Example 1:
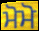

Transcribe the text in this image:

ਮੋਮੋ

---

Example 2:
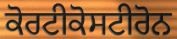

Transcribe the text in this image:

ਕੋਰਟੀਕੋਸਟੀਰੋਨ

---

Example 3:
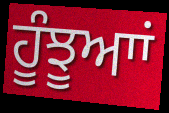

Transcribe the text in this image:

ਹੂੰਝੂਆਾਂ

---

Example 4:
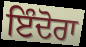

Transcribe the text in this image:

ਇੰਦੋਰਾ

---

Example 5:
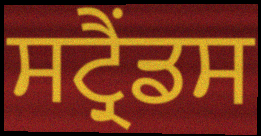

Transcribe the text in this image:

ਸਟ੍ਰੈਂਡਸ